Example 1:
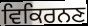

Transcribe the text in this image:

ਵਿਕਿਰਨਣ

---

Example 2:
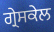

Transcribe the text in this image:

ਗ੍ਰੇਸਕੇਲ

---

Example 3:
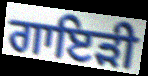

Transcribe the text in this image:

ਗਾਇੜੀ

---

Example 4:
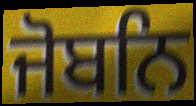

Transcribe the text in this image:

ਜੋਬਨਿ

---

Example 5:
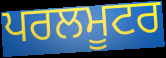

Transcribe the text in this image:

ਪਰਲਮੂਟਰ